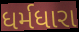
ધર્મધારા